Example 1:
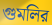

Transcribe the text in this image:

গুমলির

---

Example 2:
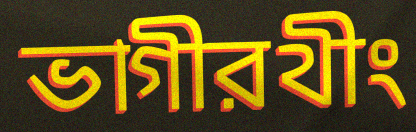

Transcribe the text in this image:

ভাগীরথীং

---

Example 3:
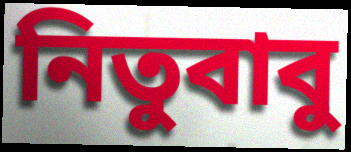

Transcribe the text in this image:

নিতুবাবু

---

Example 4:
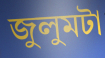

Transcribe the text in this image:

জুলুমটা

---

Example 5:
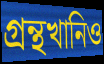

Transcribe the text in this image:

গ্রন্থখানিও